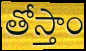
తోస్తాం